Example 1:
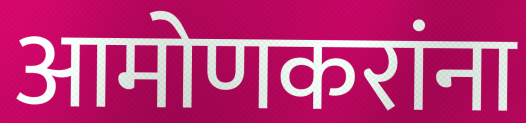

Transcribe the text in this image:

आमोणकरांना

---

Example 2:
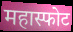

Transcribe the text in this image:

महास्फोट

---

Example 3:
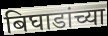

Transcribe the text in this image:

बिघाडांच्या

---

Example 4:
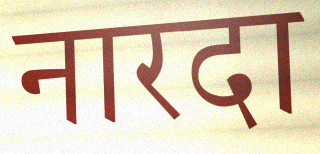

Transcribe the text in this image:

नारदा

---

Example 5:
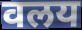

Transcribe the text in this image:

वलय